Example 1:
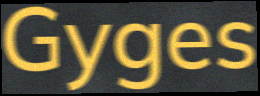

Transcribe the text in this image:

Gyges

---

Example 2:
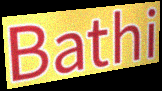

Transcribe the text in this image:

Bathi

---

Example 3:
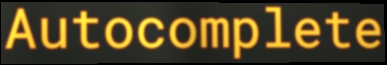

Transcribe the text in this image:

Autocomplete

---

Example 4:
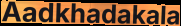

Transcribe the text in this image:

Aadkhadakala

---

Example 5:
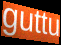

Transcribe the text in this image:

guttu